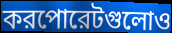
করপোরেটগুলোও